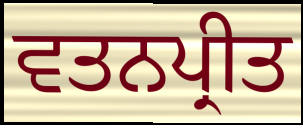
ਵਤਨਪ੍ਰੀਤ